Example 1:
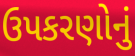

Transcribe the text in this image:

ઉપકરણોનું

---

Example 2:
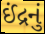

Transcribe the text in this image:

ઈંદ્રનું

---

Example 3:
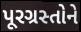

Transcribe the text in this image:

પૂરગ્રસ્તોને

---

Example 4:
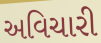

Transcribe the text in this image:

અવિચારી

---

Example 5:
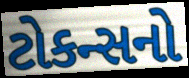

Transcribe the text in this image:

ટોકન્સનો